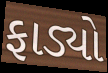
ફાડ્યો